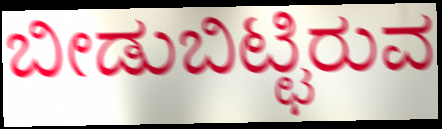
ಬೀಡುಬಿಟ್ಟಿರುವ